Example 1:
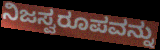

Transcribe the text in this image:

ನಿಜಸ್ವರೂಪವನ್ನು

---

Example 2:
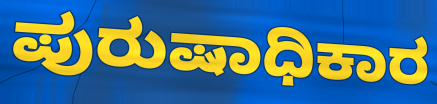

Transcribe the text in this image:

ಪುರುಷಾಧಿಕಾರ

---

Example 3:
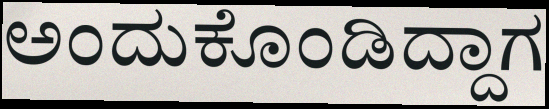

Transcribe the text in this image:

ಅಂದುಕೊಂಡಿದ್ದಾಗ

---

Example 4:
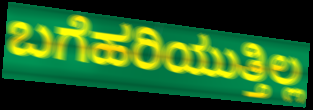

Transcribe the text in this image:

ಬಗೆಹರಿಯುತ್ತಿಲ್ಲ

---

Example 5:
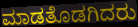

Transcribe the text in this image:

ಮಾಡತೊಡಗಿದರು